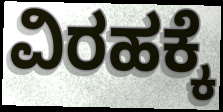
ವಿರಹಕ್ಕೆ